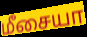
மீசையா